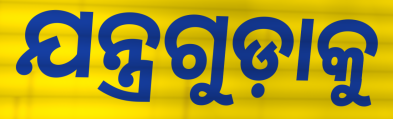
ଯନ୍ତ୍ରଗୁଡ଼ାକୁ